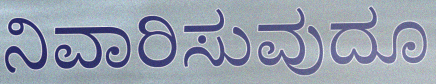
ನಿವಾರಿಸುವುದೂ